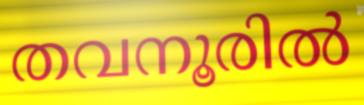
തവനൂരിൽ